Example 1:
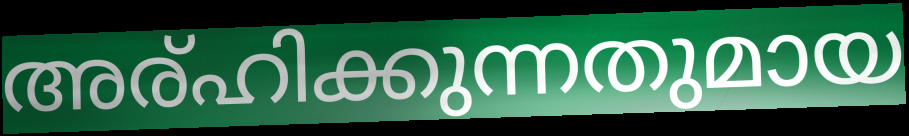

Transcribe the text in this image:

അര്ഹിക്കുന്നതുമായ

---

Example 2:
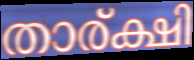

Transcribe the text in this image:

താര്ക്ഷി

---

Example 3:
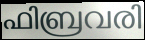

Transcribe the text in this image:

ഫിബ്രവരി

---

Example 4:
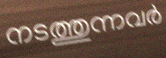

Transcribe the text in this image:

നടത്തുന്നവർ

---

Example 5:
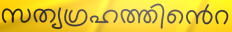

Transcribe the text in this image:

സത്യഗ്രഹത്തിൻെറ